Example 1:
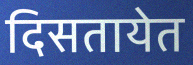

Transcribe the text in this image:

दिसतायेत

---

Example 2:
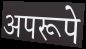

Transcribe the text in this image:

अपरूपे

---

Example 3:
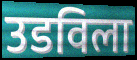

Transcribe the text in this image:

उडविला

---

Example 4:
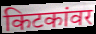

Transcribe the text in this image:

किटकांवर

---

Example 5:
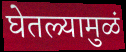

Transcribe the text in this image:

घेतल्यामुळं